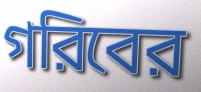
গরিবের